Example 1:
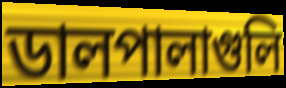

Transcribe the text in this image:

ডালপালাগুলি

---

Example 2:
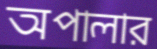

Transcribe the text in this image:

অপালার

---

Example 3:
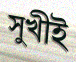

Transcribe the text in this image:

সুখীই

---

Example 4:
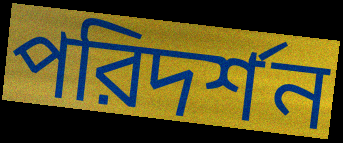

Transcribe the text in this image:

পরিদর্শন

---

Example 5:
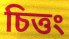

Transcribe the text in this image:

চিত্তং